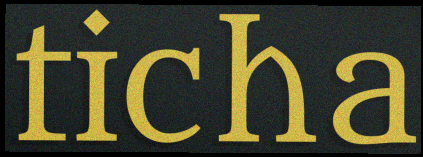
ticha